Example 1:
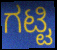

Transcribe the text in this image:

ಗಟ್ಟಿ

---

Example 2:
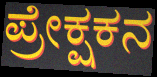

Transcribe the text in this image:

ಪ್ರೇಕ್ಷಕನ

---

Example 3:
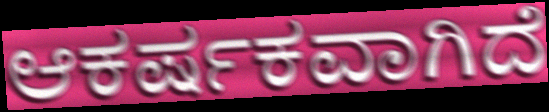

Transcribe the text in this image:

ಆಕರ್ಷಕವಾಗಿದೆ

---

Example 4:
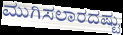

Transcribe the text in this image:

ಮುಗಿಸಲಾರದಷ್ಟು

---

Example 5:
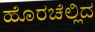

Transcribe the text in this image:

ಹೊರಚೆಲ್ಲಿದ